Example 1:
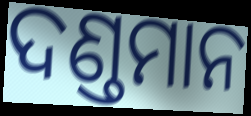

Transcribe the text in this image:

ଦଣ୍ଡମାନ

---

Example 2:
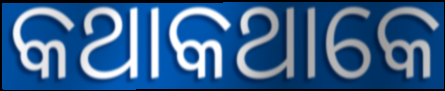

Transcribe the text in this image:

କଥାକଥାକେ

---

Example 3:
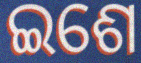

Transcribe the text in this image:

ଇଶେ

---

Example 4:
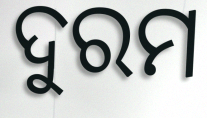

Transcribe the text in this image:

ଦୁରମ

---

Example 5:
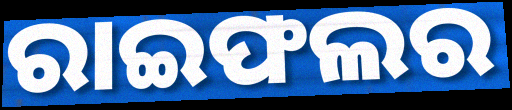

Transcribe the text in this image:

ରାଇଫଲର